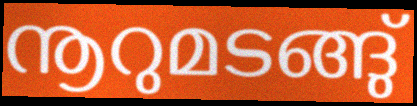
നൂറുമടങ്ങു്